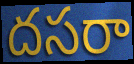
దసరా